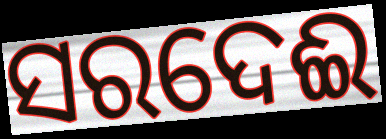
ସରଦେଈ